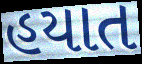
હયાત